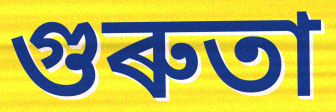
গুৰুতা